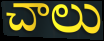
చాలు